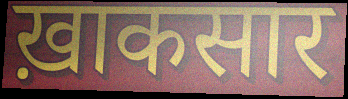
ख़ाकसार